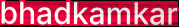
bhadkamkar